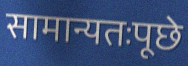
सामान्यतःपूछे